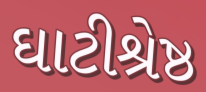
ઘાટીશ્રેષ્ઠ